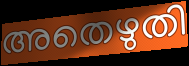
അതെഴുതി